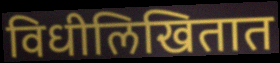
विधीलिखितात